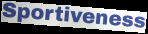
Sportiveness